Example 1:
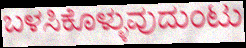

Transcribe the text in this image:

ಬಳಸಿಕೊಳ್ಳುವುದುಂಟು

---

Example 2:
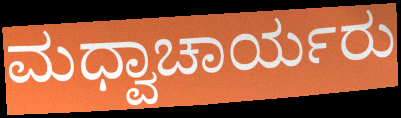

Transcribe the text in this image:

ಮಧ್ವಾಚಾರ್ಯರು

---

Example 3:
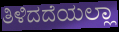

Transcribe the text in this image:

ತಿಳಿದದೆಯಲ್ಲಾ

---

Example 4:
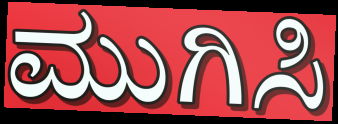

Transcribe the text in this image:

ಮುಗಿಸಿ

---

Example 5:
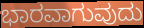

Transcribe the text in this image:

ಭಾರವಾಗುವುದು